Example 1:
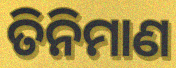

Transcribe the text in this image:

ତିନିମାଣ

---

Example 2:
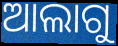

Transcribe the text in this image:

ଆଲାଗୁ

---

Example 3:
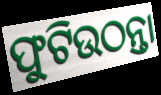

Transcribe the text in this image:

ଫୁଟିଉଠନ୍ତା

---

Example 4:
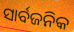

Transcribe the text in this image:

ସାର୍ବଜନିକ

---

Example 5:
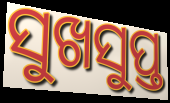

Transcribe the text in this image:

ସୁଖସୁପ୍ତ